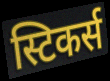
स्टिकर्स